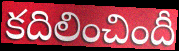
కదిలించిందీ